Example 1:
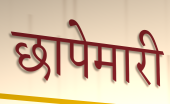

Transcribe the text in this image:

छापेमारी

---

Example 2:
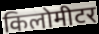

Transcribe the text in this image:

किलोमीटर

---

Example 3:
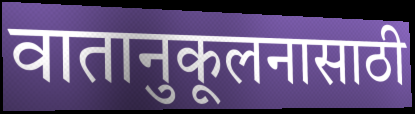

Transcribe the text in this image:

वातानुकूलनासाठी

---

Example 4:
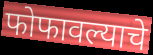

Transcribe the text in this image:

फोफावल्याचे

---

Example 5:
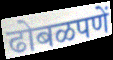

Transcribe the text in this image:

ढोबळपणें